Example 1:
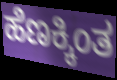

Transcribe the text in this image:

ಹೆಣಕ್ಕಿಂತ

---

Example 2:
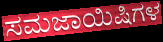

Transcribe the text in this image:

ಸಮಜಾಯಿಷಿಗಳ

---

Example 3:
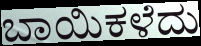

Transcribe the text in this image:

ಬಾಯಿಕಳೆದು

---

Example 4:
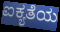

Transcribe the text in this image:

ಐಕ್ಯತೆಯ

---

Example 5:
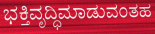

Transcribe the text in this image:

ಭಕ್ತಿವೃದ್ಧಿಮಾಡುವಂತಹ